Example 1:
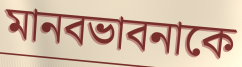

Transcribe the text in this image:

মানবভাবনাকে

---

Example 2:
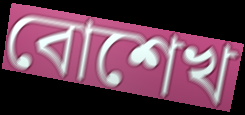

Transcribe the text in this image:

বোশেখ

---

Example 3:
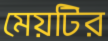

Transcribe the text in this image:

মেয়টির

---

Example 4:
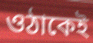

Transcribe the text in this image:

ওঠাকেই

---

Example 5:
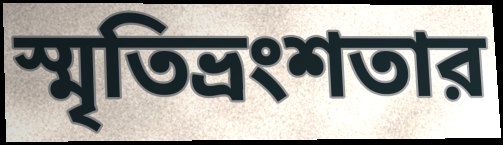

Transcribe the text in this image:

স্মৃতিভ্রংশতার